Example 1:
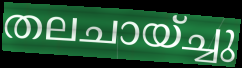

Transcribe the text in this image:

തലചായ്ച്ചു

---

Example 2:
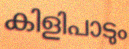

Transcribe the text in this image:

കിളിപാടും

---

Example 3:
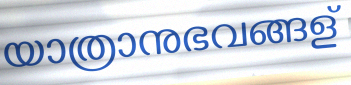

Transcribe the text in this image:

യാത്രാനുഭവങ്ങള്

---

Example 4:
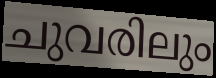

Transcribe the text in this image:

ചുവരിലും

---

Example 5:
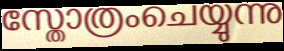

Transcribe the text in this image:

സ്തോത്രംചെയ്യുന്നു